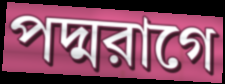
পদ্মরাগে